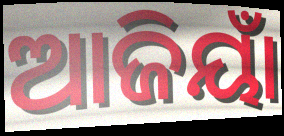
ଆଜିୟାଁ